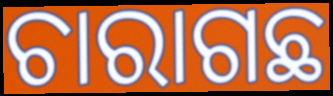
ଚାରାଗଛ